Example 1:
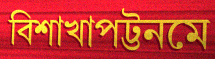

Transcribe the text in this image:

বিশাখাপট্টনমে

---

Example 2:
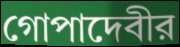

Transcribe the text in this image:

গোপাদেবীর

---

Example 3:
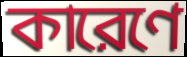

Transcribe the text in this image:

কারেণে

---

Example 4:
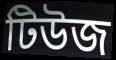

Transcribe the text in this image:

টিউজ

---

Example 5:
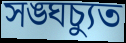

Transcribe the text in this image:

সঙ্ঘচ্যুত